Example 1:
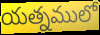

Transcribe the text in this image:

యత్నములో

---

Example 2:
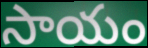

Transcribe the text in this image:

సాయం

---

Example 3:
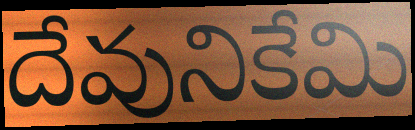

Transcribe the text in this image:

దేవునికేమి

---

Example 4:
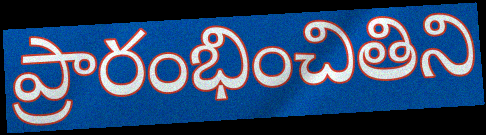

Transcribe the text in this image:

ప్రారంభించితిని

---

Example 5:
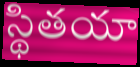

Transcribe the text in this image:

స్థితయా